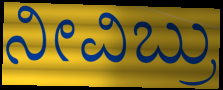
ನೀವಿಬ್ರು